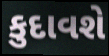
કુદાવશે